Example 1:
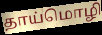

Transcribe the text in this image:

தாய்மொழி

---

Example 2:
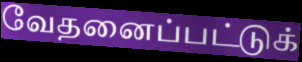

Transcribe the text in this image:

வேதனைப்பட்டுக்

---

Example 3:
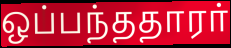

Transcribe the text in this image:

ஒப்பந்ததாரர்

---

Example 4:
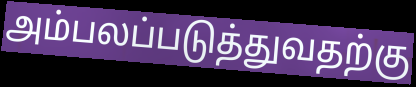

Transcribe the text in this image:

அம்பலப்படுத்துவதற்கு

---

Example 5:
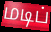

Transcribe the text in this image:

மடிப்